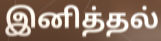
இனித்தல்